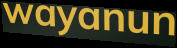
wayanun